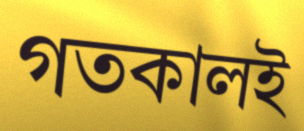
গতকালই